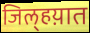
जिल्हय़ात